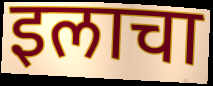
इलाचा